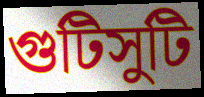
গুটিসুটি